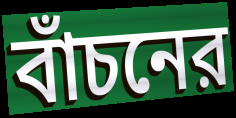
বাঁচনের